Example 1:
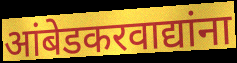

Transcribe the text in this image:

आंबेडकरवाद्यांना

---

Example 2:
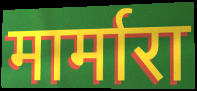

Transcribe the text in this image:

मार्मारा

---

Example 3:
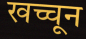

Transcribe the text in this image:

खच्चून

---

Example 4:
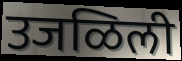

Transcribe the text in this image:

उजळिली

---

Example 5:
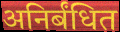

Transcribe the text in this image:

अनिर्बंधित